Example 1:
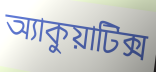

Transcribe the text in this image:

অ্যাকুয়াটিক্স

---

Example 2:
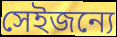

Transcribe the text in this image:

সেইজন্যে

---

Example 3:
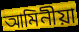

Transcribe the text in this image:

আমিনীয়া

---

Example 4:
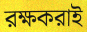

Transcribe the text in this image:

রক্ষকরাই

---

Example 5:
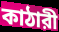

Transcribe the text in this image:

কাঠারী